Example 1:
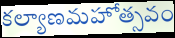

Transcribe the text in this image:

కల్యాణమహోత్సవం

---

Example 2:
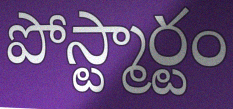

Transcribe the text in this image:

పోస్ట్మార్టం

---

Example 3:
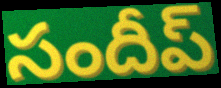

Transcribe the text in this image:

సందీప్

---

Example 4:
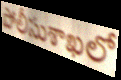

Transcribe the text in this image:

పోలీసుశాఖలో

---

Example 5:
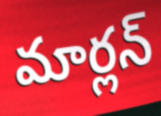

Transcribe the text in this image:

మార్లన్